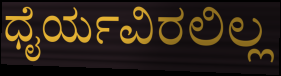
ಧೈರ್ಯವಿರಲಿಲ್ಲ